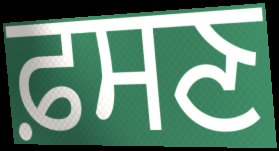
ਫ਼ਸਣ